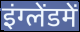
इंग्लेंडमें